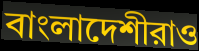
বাংলাদেশীরাও